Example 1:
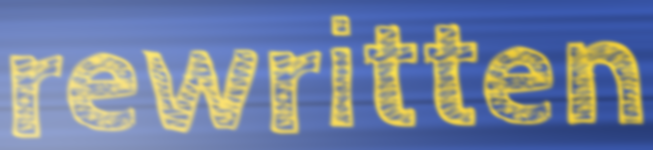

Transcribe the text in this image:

rewritten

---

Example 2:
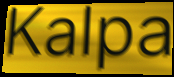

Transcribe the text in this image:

Kalpa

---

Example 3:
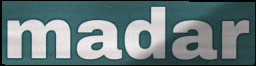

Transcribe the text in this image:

madar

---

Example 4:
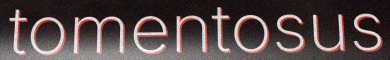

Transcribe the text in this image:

tomentosus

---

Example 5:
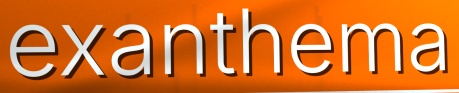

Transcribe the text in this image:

exanthema